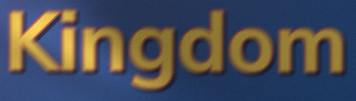
Kingdom